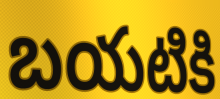
బయటికి